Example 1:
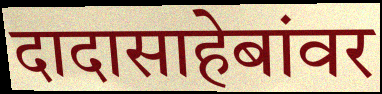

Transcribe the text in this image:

दादासाहेबांवर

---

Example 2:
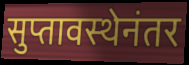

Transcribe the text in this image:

सुप्तावस्थेनंतर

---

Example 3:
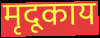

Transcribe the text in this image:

मृदूकाय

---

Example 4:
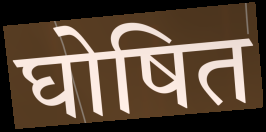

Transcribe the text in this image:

घोषित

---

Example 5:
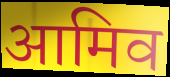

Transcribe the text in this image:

आमिव